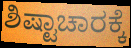
ಶಿಷ್ಟಾಚಾರಕ್ಕೆ